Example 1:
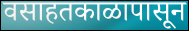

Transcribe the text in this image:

वसाहतकाळापासून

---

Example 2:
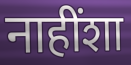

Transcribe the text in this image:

नाहींशा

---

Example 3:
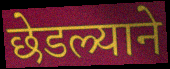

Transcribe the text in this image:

छेडल्याने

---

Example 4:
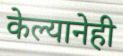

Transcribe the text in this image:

केल्यानेही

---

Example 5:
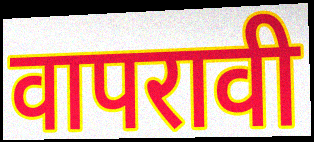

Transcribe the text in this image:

वापरावी